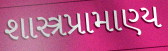
શાસ્ત્રપ્રામાણ્ય